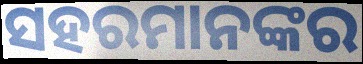
ସହରମାନଙ୍କର